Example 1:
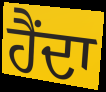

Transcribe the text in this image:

ਹੈਂਦਾ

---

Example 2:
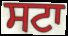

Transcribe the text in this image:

ਸਟਾ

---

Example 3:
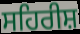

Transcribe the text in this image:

ਸਹਿਰੀਸ਼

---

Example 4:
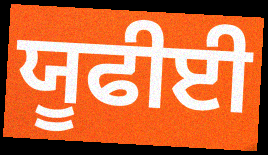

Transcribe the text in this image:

ਯੂਫੀਈ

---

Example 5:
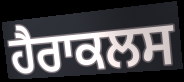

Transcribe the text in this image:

ਹੈਰਾਕਲਸ